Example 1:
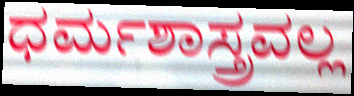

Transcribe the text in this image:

ಧರ್ಮಶಾಸ್ತ್ರವಲ್ಲ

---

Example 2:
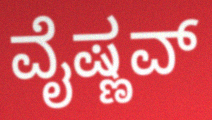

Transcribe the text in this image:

ವೈಷ್ಣವ್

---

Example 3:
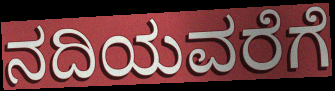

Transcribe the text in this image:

ನದಿಯವರೆಗೆ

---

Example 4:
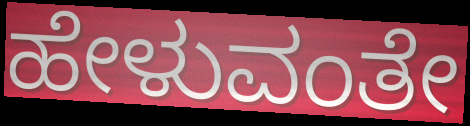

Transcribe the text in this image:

ಹೇಳುವಂತೇ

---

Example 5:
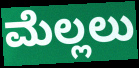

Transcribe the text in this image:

ಮೆಲ್ಲಲು